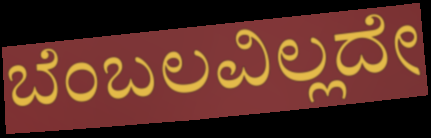
ಬೆಂಬಲವಿಲ್ಲದೇ